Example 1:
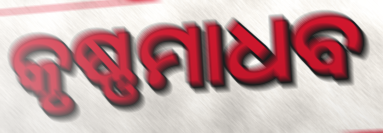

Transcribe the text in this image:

କୃଷ୍ଣମାଧବ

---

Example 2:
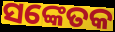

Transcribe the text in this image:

ସଙ୍କେତକ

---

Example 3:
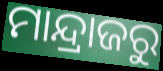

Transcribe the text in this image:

ମାନ୍ଦ୍ରାଜରୁ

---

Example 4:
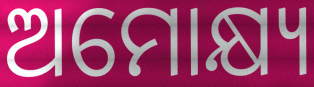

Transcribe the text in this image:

ଅମୋକ୍ଷ୍ୟ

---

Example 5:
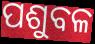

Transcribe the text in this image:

ପଶୁବଳ